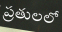
ప్రతులలో